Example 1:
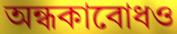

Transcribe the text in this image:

অন্ধকাবোধও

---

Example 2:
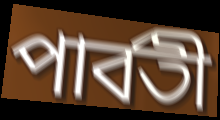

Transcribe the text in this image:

পার্বতী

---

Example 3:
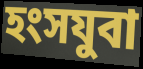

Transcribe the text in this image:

হংসযুবা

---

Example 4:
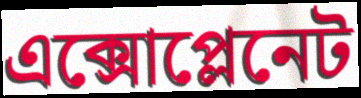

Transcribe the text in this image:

এক্সোপ্লেনেট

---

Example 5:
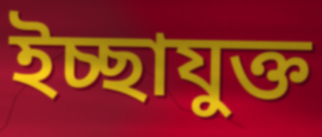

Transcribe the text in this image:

ইচ্ছাযুক্ত